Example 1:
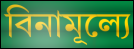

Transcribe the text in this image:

বিনামূল্যে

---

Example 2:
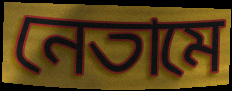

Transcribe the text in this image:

নেতামে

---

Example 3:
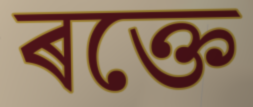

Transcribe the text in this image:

ৰক্তে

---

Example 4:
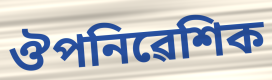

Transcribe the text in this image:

ঔপনিৱেশিক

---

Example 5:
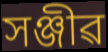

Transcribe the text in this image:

সঞ্জীৱ